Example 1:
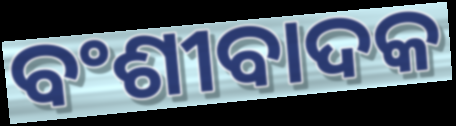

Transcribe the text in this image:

ବଂଶୀବାଦକ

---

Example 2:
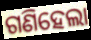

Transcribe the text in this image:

ଗଣିହେଲା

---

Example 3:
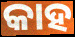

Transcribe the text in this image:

କାହ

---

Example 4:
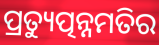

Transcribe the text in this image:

ପ୍ରତ୍ୟୁତ୍ପନ୍ନମତିର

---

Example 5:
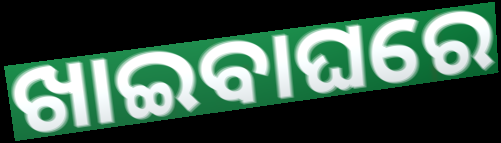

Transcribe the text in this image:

ଖାଇବାଘରେ